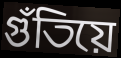
গুঁতিয়ে